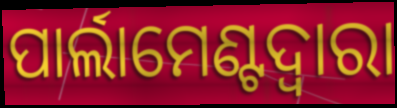
ପାର୍ଲାମେଣ୍ଟଦ୍ୱାରା